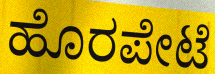
ಹೊರಪೇಟೆ